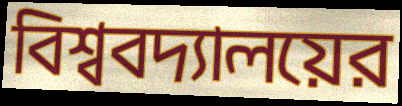
বিশ্ববদ্যালয়ের